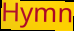
Hymn